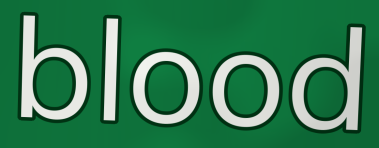
blood